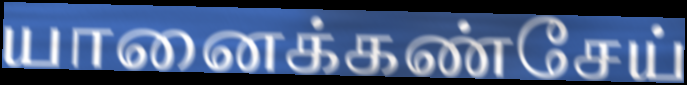
யானைக்கண்சேய்